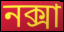
নক্সা